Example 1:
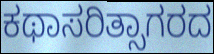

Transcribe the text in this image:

ಕಥಾಸರಿತ್ಸಾಗರದ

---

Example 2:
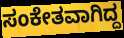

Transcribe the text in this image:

ಸಂಕೇತವಾಗಿದ್ದ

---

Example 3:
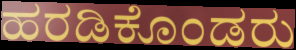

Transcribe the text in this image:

ಹರಡಿಕೊಂಡರು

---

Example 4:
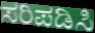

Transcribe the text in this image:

ಸರಿಪಡಿಸಿ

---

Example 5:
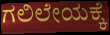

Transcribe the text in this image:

ಗಲಿಲೇಯಕ್ಕೆ